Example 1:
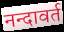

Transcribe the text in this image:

नन्दावर्त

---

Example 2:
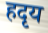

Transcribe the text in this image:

हदृय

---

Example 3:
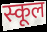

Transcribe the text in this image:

स्‍कूल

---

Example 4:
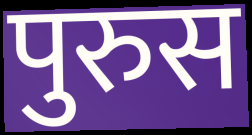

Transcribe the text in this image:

पुरुस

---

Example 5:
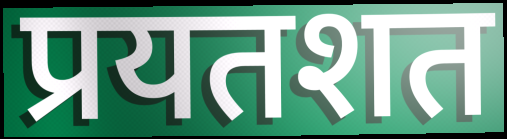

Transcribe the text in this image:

प्रयतशत